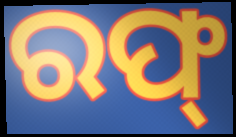
ରଫ୍